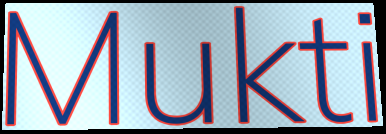
Mukti